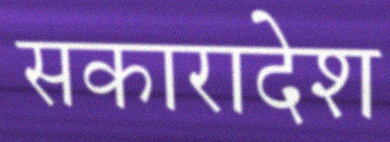
सकारादेश